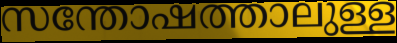
സന്തോഷത്താലുള്ള